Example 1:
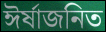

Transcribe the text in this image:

ঈর্ষাজনিত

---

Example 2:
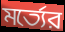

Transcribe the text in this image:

মর্ত্যের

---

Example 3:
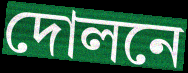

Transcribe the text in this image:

দোলনে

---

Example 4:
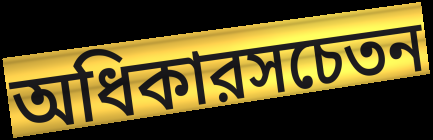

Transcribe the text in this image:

অধিকারসচেতন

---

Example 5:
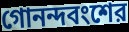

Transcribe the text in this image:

গোনন্দবংশের